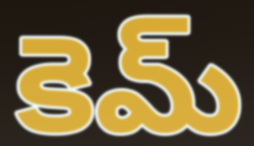
కెమ్